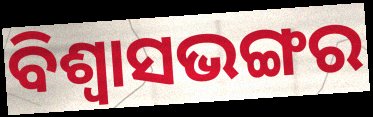
ବିଶ୍ଵାସଭଙ୍ଗର